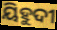
ୟିହୁଦୀ